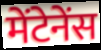
मेंटेनेंस